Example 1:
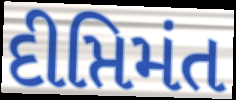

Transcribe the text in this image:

દીપ્તિમંત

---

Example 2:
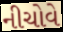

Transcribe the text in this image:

નીચોવે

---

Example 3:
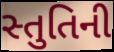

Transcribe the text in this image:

સ્તુતિની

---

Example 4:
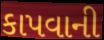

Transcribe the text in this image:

કાપવાની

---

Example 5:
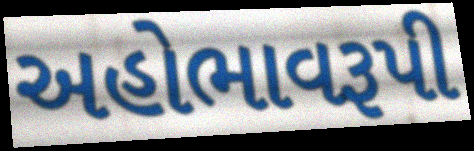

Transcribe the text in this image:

અહોભાવરૂપી